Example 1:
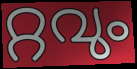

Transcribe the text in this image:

റ്റവും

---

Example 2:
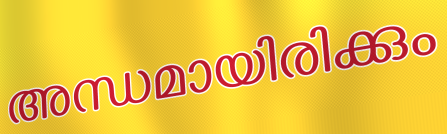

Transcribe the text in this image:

അന്ധമായിരിക്കും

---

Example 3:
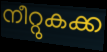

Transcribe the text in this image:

നീറ്റുകക്ക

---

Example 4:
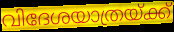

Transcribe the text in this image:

വിദേശയാത്രയ്ക്ക്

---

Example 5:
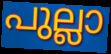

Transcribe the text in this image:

പുല്ലാ